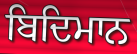
ਬਿਦਿਮਾਨ